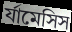
র্যামেসিস